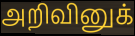
அறிவினுக்